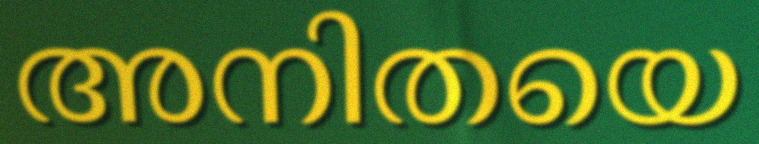
അനിതയെ